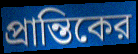
প্রান্তিকের